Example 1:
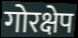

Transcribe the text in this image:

गोरक्षेप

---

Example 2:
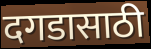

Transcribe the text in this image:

दगडासाठी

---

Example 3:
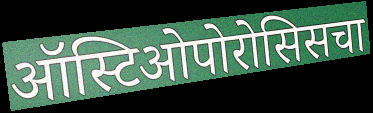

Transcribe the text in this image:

ऑस्टिओपोरोसिसचा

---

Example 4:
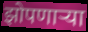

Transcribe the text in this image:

झोपणार्‍या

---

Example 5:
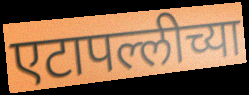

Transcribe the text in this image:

एटापल्लीच्या